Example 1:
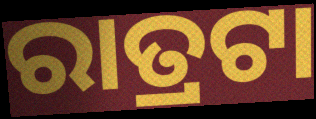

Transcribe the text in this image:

ରାତ୍ରଟା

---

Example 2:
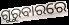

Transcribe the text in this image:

ଗୁରୁବାରରେ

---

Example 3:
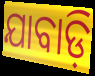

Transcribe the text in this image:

ଯାବାଡ଼ି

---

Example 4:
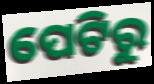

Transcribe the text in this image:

ପେଟିରୁ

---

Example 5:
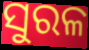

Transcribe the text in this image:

ସୁରଳ